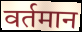
वर्तमान